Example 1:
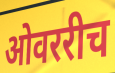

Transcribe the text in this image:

ओवररीच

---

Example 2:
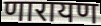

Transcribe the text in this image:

णारायण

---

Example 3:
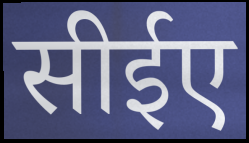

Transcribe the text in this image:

सीईए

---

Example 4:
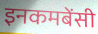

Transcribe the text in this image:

इनकमबेंसी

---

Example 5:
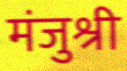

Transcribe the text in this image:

मंजुश्री